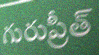
గురుప్రీత్